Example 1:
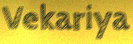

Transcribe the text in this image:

Vekariya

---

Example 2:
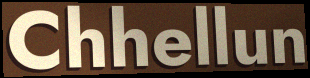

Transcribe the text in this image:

Chhellun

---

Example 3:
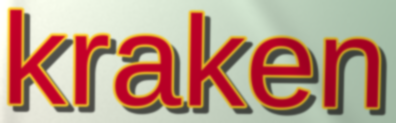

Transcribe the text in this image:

kraken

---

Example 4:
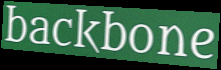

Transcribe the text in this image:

backbone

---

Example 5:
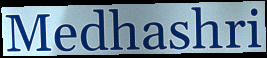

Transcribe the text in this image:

Medhashri